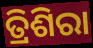
ତ୍ରିଶିରା